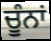
ਚੂੰਨਾਂ